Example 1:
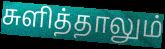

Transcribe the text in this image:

சுளித்தாலும்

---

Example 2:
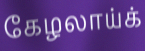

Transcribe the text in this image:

கேழலாய்க்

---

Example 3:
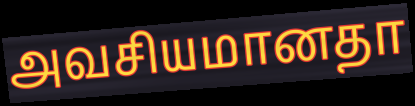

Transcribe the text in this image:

அவசியமானதா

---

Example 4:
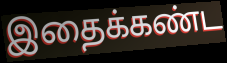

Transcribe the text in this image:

இதைக்கண்ட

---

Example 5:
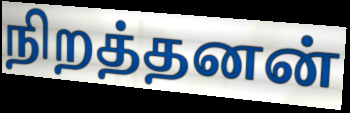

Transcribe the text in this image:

நிறத்தனன்